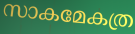
സാകമേകത്ര